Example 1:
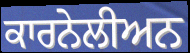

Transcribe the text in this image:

ਕਾਰਨੇਲੀਅਨ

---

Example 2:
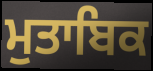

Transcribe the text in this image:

ਮੁਤਾਬਿਕ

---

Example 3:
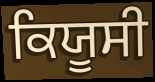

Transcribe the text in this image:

ਕਿਯੂਸੀ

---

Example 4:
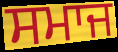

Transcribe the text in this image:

ਸਮਾਜ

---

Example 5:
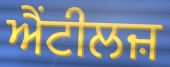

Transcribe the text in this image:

ਐਂਟੀਲਜ਼